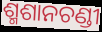
ଶ୍ମଶାନଚଣ୍ଡୀ